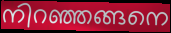
നിറഞ്ഞങ്ങനെ